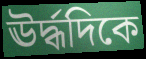
ঊর্দ্ধদিকে